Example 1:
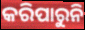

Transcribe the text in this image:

କରିପାରୁନି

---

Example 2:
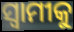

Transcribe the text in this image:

ସ୍ବାମୀକୁ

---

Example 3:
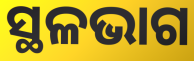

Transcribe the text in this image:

ସ୍ଥଳଭାଗ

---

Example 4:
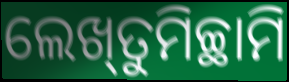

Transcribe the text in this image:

ଲେଖ୍‌ତୁମିଚ୍ଛାମି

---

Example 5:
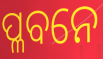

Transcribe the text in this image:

ପ୍ଳବନେ